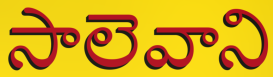
సాలెవాని